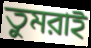
তুমরাই